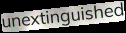
unextinguished